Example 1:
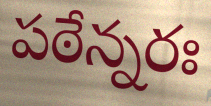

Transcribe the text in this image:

పఠేన్నరః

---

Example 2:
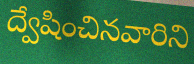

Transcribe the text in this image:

ద్వేషించినవారిని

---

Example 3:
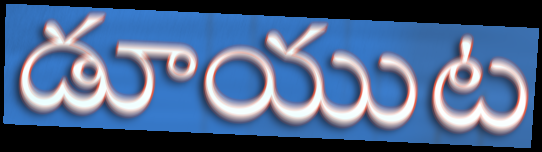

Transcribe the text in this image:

డూయుట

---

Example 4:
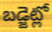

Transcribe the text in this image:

బడ్జెట్లో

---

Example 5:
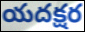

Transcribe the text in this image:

యదక్షర